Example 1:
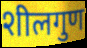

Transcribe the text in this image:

शीलगुण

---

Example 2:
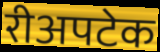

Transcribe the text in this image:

रीअपटेक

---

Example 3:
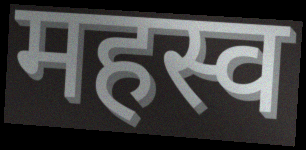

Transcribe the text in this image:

महस्व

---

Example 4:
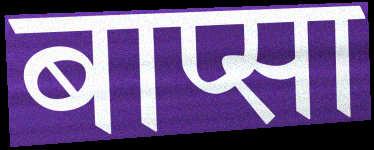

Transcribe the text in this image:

बाप्सा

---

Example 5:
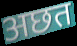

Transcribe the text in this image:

अछत